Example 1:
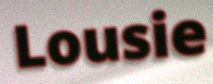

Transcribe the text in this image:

Lousie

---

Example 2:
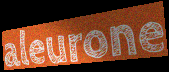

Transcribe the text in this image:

aleurone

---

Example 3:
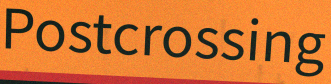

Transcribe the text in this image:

Postcrossing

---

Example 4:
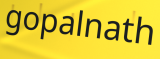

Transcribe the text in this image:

gopalnath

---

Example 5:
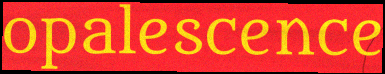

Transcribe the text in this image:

opalescence